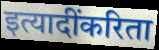
इत्यादींकरिता